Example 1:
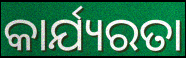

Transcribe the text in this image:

କାର୍ଯ୍ୟରତା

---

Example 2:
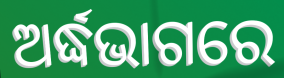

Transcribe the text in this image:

ଅର୍ଦ୍ଧଭାଗରେ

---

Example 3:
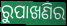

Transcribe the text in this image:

ରୁପାଖଣିର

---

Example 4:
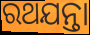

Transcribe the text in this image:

ରଥଯନ୍ତା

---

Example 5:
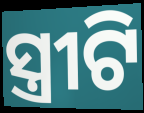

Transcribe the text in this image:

ସ୍ତ୍ରୀଟି